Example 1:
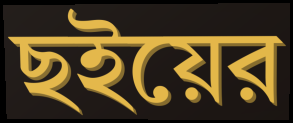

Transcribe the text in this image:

ছইয়ের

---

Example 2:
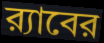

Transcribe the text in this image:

র‍্যাবের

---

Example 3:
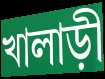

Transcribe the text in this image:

খালাড়ী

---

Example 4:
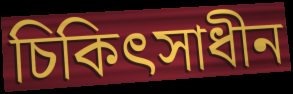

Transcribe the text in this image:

চিকিৎসাধীন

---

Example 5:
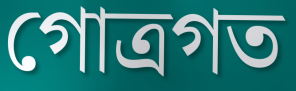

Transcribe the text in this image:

গোত্রগত